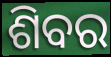
ଶିବର